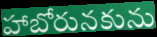
హాబోరునకును